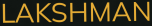
LAKSHMAN